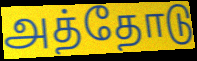
அத்தோடு